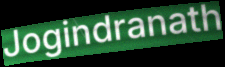
Jogindranath